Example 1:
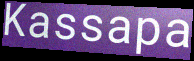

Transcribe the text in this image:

Kassapa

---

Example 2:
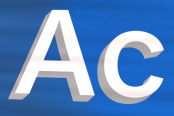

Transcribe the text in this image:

Ac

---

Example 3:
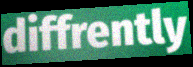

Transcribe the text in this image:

diffrently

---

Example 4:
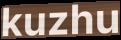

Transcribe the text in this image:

kuzhu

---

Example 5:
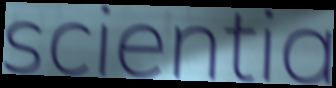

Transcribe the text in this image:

scientia